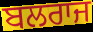
ਬਲਰਾਜ